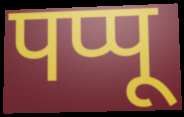
पप्‍पू